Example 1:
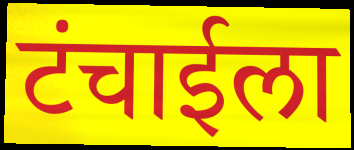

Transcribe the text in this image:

टंचाईला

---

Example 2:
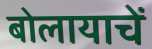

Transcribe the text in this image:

बोलायाचें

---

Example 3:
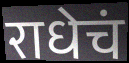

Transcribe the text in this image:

राधेचं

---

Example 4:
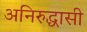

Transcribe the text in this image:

अनिरुद्धासी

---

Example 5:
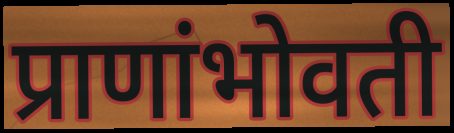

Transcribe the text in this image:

प्राणांभोवती